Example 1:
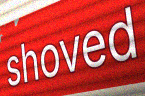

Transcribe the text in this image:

shoved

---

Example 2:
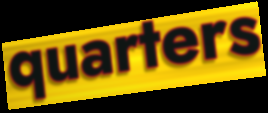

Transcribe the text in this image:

quarters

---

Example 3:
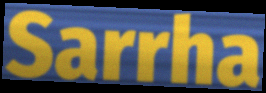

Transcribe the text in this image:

Sarrha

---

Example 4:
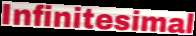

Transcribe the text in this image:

Infinitesimal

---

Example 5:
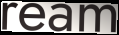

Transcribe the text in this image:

ream